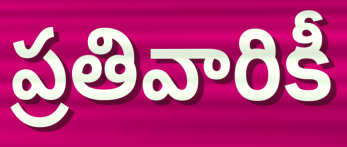
ప్రతివారికీ